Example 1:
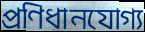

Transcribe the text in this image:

প্ৰণিধানযোগ্য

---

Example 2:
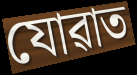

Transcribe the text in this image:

যোৱাত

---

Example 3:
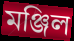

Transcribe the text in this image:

মঞ্জিল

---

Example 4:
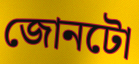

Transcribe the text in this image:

জোনটো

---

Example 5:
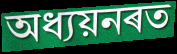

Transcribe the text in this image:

অধ্যয়নৰত